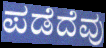
ಪಡೆದೆವು